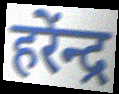
हरेंन्द्र